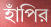
হাঁপির